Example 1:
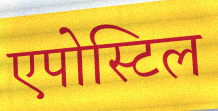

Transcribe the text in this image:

एपोस्टिल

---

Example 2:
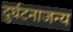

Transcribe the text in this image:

दुर्घटनाजन्य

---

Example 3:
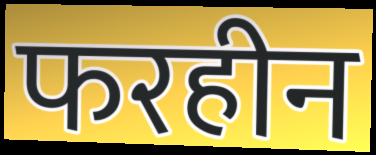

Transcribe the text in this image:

फरहीन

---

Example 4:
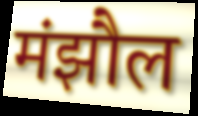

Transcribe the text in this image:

मंझौल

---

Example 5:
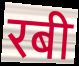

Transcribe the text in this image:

रबी